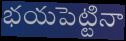
భయపెట్టినా